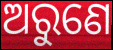
ଅରୁଣେ